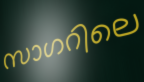
സാഗറിലെ